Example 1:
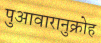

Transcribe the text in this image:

पुआवारानुक्रोह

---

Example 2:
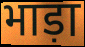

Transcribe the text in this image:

भाड़ा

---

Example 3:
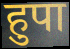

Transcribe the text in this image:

हुपा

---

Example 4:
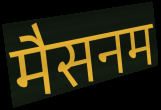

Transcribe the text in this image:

मैसनम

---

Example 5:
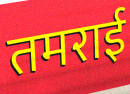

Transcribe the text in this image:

तमराई